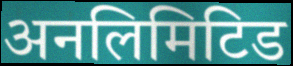
अनलिमिटिड